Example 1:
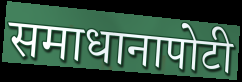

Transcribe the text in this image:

समाधानापोटी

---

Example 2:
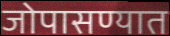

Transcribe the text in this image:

जोपासण्यात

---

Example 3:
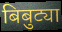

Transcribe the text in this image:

बिबुट्या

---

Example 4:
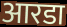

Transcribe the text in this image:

आरडा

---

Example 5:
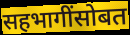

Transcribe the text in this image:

सहभागींसोबत